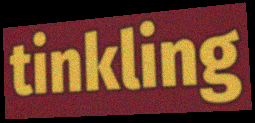
tinkling